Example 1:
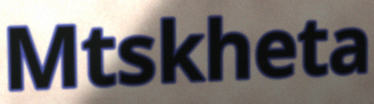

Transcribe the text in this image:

Mtskheta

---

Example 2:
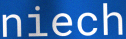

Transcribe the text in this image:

niech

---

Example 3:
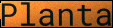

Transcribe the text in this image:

Planta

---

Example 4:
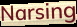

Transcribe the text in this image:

Narsing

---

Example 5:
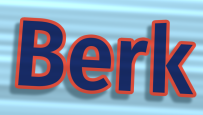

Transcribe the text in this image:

Berk